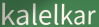
kalelkar